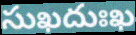
సుఖదుఃఖ